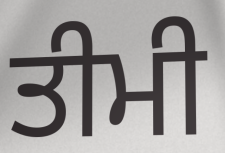
ਤੀਮੀ